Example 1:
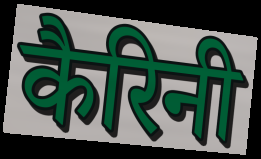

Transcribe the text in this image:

कैरिनी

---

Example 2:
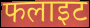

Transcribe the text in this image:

फलाइट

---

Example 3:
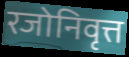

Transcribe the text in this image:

रजोनिवृत्त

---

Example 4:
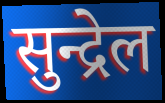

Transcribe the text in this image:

सुन्द्रेल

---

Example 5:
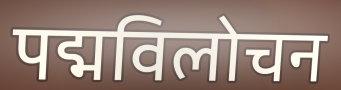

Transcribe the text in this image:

पद्मविलोचन